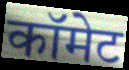
कॉमेट